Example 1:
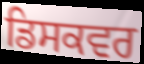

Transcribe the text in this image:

ਡਿਸਕਵਰ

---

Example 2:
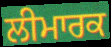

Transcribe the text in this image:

ਲੀਮਾਰਕ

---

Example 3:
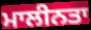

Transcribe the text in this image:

ਮਾਲੀਨਤਾ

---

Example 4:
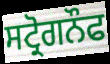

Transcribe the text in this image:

ਸਟ੍ਰੋਗਨੌਫ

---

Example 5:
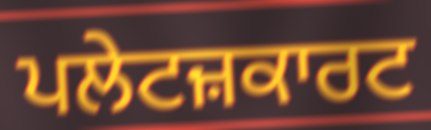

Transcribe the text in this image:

ਪਲੇਟਜ਼ਕਾਰਟ